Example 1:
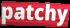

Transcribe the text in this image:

patchy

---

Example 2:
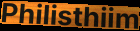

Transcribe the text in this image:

Philisthiim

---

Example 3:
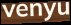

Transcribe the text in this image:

venyu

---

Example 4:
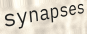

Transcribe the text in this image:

synapses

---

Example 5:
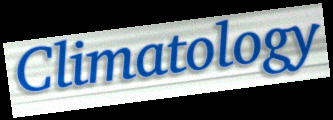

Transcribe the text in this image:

Climatology